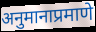
अनुमानाप्रमाणे